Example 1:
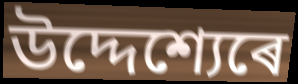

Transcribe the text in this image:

উদ্দেশ্যেৰে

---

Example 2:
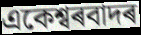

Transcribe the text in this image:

একেশ্বৰবাদৰ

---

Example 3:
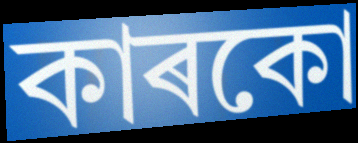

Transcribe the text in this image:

কাৰকো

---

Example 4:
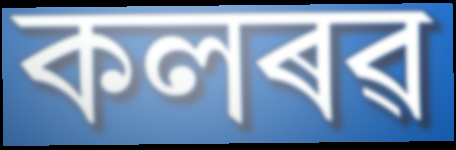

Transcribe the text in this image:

কলৰৱ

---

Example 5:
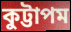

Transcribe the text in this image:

কুট্টাপম